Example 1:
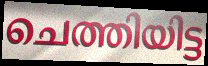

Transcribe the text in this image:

ചെത്തിയിട്ട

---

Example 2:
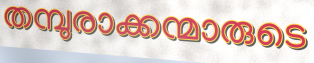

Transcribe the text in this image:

തമ്പുരാക്കന്മാരുടെ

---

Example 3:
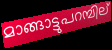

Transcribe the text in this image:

മാങ്ങാട്ടുപറമ്പില്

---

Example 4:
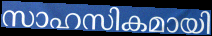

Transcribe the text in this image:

സാഹസികമായി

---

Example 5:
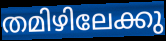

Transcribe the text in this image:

തമിഴിലേക്കു